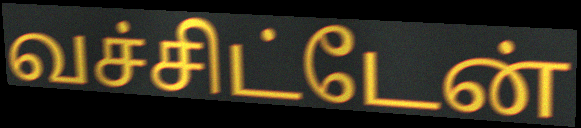
வச்சிட்டேன்